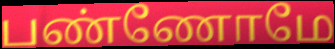
பண்ணோமே